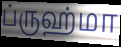
ப்ருஹ்மா